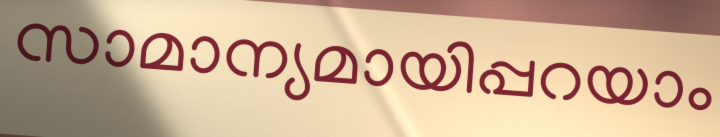
സാമാന്യമായിപ്പറയാം